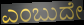
ಎಂಬುದೇ